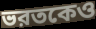
ভরতকেও